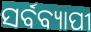
ସର୍ବବ୍ୟାପୀ